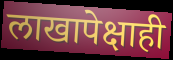
लाखापेक्षाही